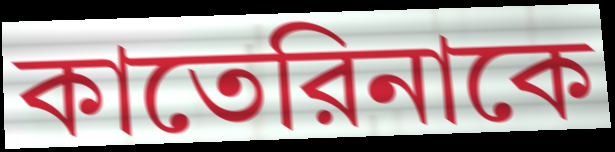
কাতেরিনাকে